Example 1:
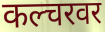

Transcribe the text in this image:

कल्चरवर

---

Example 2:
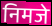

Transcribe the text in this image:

निमजे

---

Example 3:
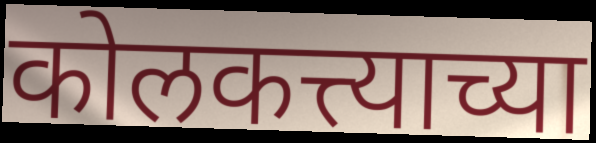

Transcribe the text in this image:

कोलकत्त्याच्या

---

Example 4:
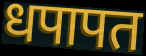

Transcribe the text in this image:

धपापत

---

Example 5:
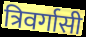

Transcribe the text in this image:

त्रिवर्गासी